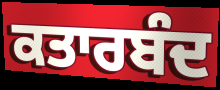
ਕਤਾਰਬੰਦ